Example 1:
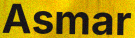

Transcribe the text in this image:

Asmar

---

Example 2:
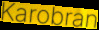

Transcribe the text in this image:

Karobran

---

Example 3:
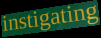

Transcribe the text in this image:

instigating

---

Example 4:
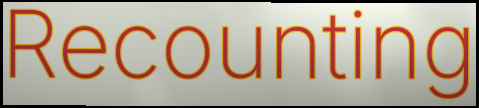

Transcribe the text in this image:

Recounting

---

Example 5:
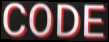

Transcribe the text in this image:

CODE